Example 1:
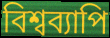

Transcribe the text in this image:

বিশ্বব্যাপি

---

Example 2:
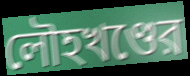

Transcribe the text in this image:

লৌহখণ্ডের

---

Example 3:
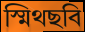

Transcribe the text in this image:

স্মিথছবি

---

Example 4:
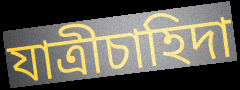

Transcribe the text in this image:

যাত্রীচাহিদা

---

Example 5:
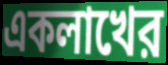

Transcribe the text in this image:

একলাখের